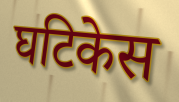
घटिकेस